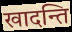
खादन्ति